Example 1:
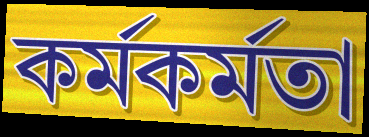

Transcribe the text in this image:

কর্মকর্মতা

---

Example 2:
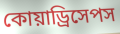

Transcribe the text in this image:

কোয়াড্রিসেপস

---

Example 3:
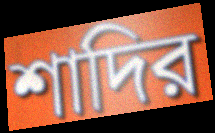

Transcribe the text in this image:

শাদির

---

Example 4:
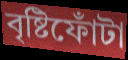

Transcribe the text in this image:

বৃষ্টিফোঁটা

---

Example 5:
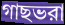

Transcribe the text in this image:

গাছভরা